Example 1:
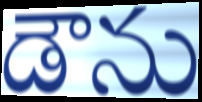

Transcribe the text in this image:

డౌను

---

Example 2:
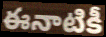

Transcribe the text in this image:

ఈనాటికీ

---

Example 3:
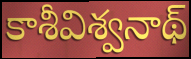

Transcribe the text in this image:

కాశీవిశ్వనాథ్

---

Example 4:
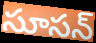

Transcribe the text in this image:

సూసన్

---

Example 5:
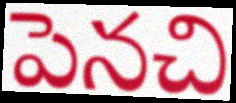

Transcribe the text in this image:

పెనచి